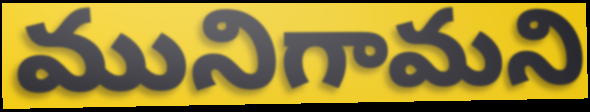
మునిగామని